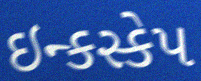
ઇન્કસ્કેપ